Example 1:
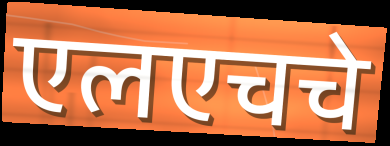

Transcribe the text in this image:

एलएचचे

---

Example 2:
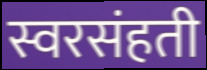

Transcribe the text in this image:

स्वरसंहती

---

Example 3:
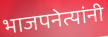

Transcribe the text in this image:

भाजपनेत्यांनी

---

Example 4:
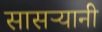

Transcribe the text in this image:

सासऱ्यानी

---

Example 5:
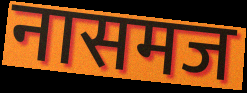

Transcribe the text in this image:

नासमज